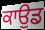
ਕਾਉਡ